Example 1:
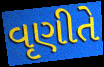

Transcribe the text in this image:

વૃણીતે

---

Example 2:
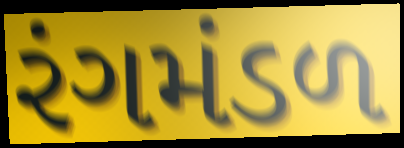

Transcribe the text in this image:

રંગમંડળ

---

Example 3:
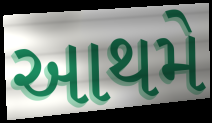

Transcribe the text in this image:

આથમે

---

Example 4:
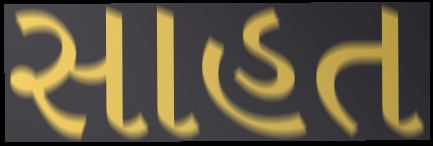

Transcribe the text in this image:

સાહત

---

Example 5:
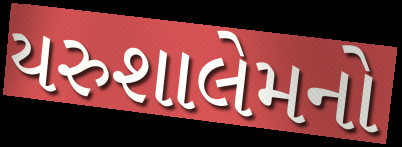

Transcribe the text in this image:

યરુશાલેમનો